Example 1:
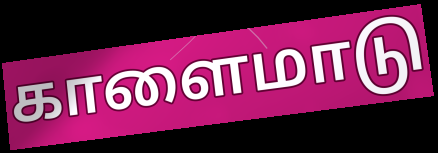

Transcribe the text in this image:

காளைமாடு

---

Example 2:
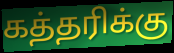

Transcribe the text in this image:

கத்தரிக்கு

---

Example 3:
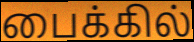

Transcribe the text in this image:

பைக்கில்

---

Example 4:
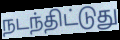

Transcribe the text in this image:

நடந்திட்டுது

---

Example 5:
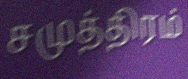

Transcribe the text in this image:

சமுத்திரம்